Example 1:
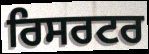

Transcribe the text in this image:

ਰਿਸਰਟਰ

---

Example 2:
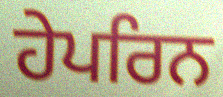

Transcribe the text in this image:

ਹੇਪਰਿਨ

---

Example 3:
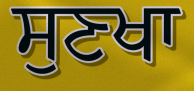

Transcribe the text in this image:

ਸੁਣਖਾ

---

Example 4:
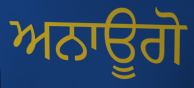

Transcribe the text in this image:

ਅਨਾਊਗੋ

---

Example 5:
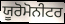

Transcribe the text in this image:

ਯੂਰੋਮੋਨੀਟਰ